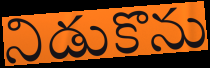
నిడుకొను